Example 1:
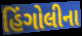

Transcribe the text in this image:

હિંગોલીના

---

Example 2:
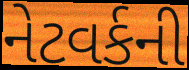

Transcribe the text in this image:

નેટવર્કની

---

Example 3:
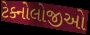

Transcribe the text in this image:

ટેક્નોલોજીઓ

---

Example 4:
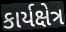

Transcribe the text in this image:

કાર્યક્ષેત્ર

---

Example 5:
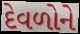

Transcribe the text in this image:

દેવળોને